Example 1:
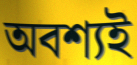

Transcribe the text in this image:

অবশ্যই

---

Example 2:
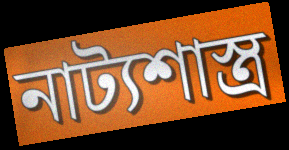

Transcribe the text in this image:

নাট্যশাস্ত্ৰ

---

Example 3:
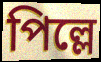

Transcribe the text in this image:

পিল্লে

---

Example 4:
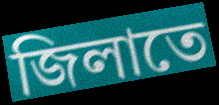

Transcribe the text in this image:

জিলাতে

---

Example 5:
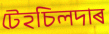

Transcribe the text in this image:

টেহচিলদাৰ